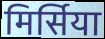
मिर्सिया